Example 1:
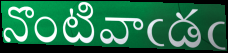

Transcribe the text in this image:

నొంటివాఁడఁ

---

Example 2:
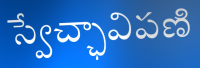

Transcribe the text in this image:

స్వేచ్ఛావిపణి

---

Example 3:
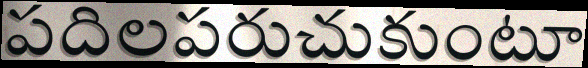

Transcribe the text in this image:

పదిలపరుచుకుంటూ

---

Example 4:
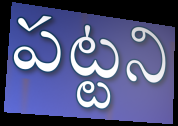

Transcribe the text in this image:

పట్టని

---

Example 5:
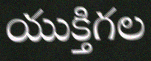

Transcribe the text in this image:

యుక్తిగల